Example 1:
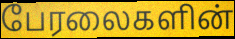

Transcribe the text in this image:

பேரலைகளின்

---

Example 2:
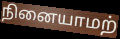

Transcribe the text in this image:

நினையாமற்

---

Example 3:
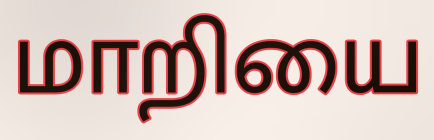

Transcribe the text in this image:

மாறியை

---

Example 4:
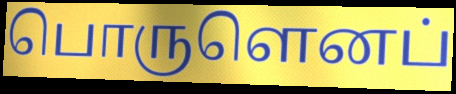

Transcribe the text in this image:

பொருளெனப்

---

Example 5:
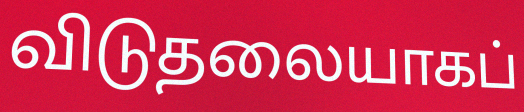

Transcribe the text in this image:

விடுதலையாகப்